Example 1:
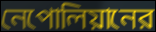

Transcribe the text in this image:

নেপোলিয়ানের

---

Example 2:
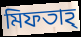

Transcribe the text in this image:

মিফতাহ্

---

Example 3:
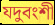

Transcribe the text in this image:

যদুবংশী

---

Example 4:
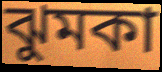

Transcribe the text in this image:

ঝুমকা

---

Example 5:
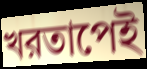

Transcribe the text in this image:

খরতাপেই